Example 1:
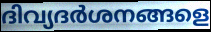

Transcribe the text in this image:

ദിവ്യദർശനങ്ങളെ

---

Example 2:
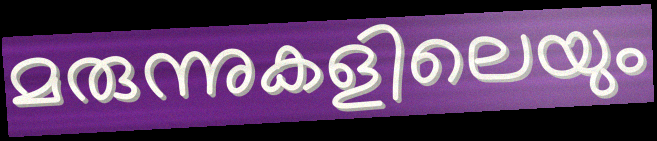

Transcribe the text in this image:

മരുന്നുകളിലെയും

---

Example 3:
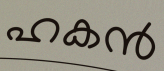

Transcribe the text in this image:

ഹകൻ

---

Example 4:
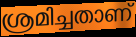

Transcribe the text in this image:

ശ്രമിച്ചതാണ്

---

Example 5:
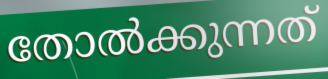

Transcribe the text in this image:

തോൽക്കുന്നത്